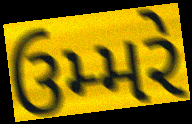
ઉમ્મરે